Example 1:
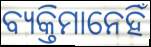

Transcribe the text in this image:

ବ୍ୟକ୍ତିମାନେହିଁ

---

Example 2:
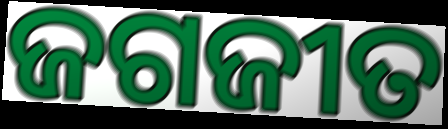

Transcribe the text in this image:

ଜଗଜୀତ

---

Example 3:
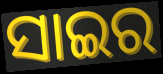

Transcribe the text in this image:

ସାଇର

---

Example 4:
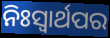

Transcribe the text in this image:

ନିଃସ୍ୱାର୍ଥପର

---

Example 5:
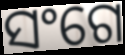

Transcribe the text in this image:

ସଂଗେ